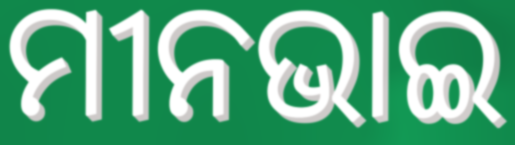
ମୀନଭାଇ